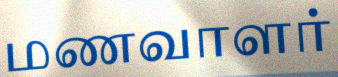
மணவாளர்